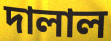
দালাল